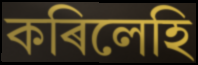
কৰিলেহি